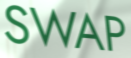
SWAP